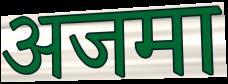
अजमा